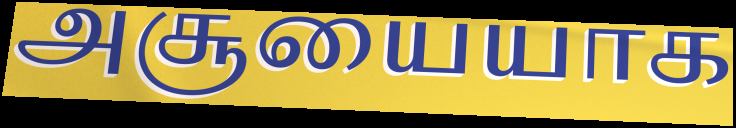
அசூயையாக